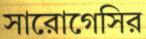
সারোগেসির